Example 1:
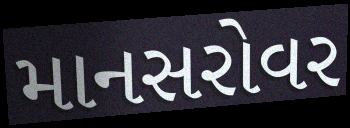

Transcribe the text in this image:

માનસરોવર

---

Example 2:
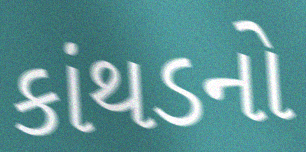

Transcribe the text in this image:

કાંથડનો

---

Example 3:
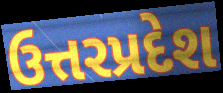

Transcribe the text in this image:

ઉત્તરપ્રદેશ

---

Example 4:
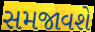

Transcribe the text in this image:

સમજાવશે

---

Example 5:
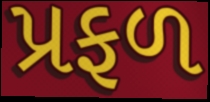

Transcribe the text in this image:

પ્રફળ